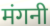
मंगनी